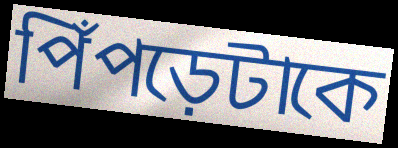
পিঁপড়েটাকে